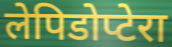
लेपिडोप्टेरा